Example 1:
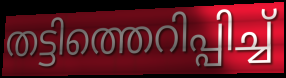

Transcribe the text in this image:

തട്ടിത്തെറിപ്പിച്ച്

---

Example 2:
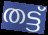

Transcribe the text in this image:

തട്ട്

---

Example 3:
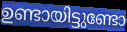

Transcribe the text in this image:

ഉണ്ടായിട്ടുണ്ടോ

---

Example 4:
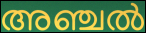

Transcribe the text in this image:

അഞ്ചൽ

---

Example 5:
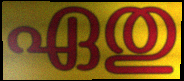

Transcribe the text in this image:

ഏതു